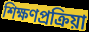
শিক্ষণপ্রক্রিয়া